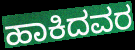
ಹಾಕಿದವರ